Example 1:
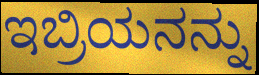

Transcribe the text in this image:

ಇಬ್ರಿಯನನ್ನು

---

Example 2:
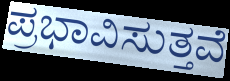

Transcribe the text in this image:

ಪ್ರಭಾವಿಸುತ್ತವೆ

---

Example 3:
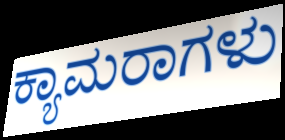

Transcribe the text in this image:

ಕ್ಯಾಮರಾಗಳು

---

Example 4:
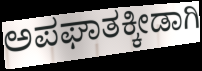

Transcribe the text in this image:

ಅಪಘಾತಕ್ಕೀಡಾಗಿ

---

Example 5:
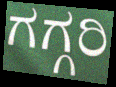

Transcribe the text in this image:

ಗಗ್ಗರಿ